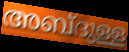
അബ്ദുള്ള